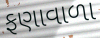
ફણાવાળા